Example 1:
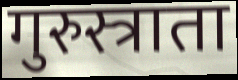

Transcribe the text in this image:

गुरुस्त्राता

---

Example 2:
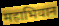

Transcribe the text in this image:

महाभियान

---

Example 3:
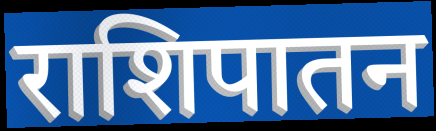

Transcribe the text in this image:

राशिपातन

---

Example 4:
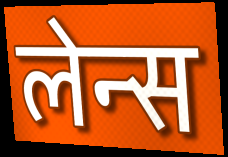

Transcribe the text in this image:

लेन्स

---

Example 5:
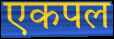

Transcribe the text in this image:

एकपल